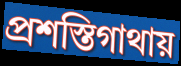
প্রশস্তিগাথায়